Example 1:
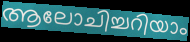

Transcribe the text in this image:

ആലോചിച്ചറിയാം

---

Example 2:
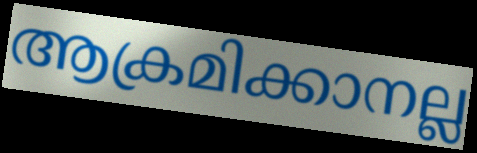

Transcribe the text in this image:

ആക്രമിക്കാനല്ല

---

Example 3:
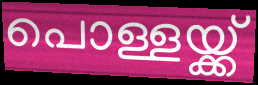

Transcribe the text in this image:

പൊള്ളയ്ക്ക്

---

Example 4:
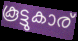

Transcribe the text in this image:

കൂട്ടുകാര്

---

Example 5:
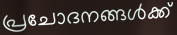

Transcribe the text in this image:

പ്രചോദനങ്ങൾക്ക്